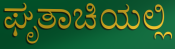
ಘೃತಾಚಿಯಲ್ಲಿ